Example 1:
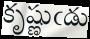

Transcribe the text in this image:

కృష్ణుఁడు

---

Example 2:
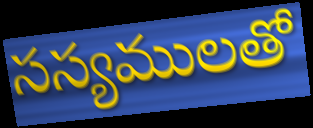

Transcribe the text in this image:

సస్యములతో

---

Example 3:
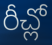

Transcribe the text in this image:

రీచ్లో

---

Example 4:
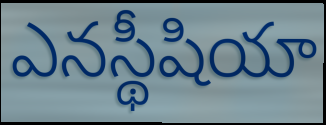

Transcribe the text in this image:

ఎనస్థీషియా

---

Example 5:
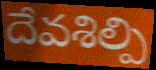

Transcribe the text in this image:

దేవశిల్పి